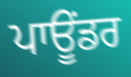
ਪਾਊਂਡਰ